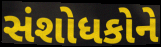
સંશોધકોને